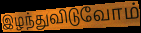
இழந்துவிடுவோம்